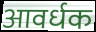
आवर्धक